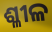
ଶ୍ଳୀଳ